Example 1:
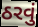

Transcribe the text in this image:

ઠરવું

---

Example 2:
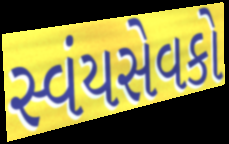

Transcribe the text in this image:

સ્વંયસેવકો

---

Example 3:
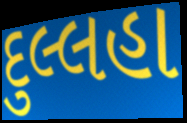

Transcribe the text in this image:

દુલ્લહા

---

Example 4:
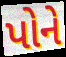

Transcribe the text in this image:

પોને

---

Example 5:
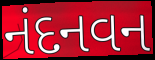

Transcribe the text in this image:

નંદનવન